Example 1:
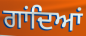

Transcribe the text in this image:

ਗਾਂਦਿਆਂ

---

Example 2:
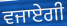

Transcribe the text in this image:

ਵਜਾਏਗੀ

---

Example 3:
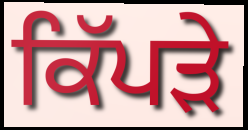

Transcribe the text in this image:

ਕਿੱਪੜੇ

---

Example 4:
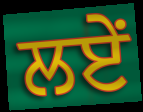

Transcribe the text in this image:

ਲਏਂ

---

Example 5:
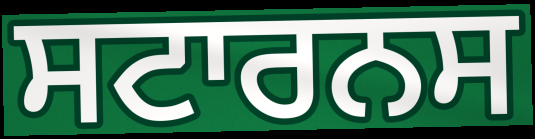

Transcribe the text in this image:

ਸਟਾਰਨਸ